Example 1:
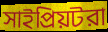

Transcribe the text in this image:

সাইপ্রিয়টরা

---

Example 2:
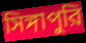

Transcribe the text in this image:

সিঙ্গাপুরি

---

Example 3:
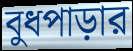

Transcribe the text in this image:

বুধপাড়ার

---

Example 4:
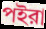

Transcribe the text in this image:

পইরা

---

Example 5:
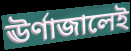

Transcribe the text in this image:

ঊর্ণাজালেই